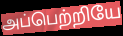
அப்பெற்றியே